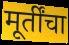
मूर्तींचा